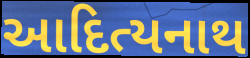
આદિત્યનાથ